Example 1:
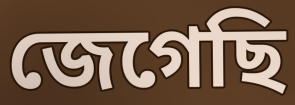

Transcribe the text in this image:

জেগেছি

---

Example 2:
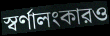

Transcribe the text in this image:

স্বর্ণালংকারও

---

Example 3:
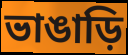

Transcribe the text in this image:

ভাঙাড়ি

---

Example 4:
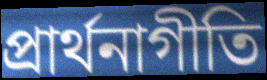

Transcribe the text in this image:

প্রার্থনাগীতি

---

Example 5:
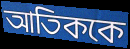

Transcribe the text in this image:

আতিককে